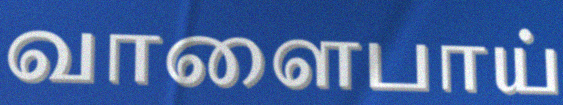
வாளைபாய்